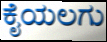
ಕೈಯಲಗು